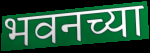
भवनच्या